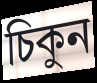
চিকুন